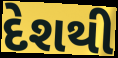
દેશથી